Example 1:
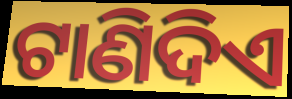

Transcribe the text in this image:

ଟାଣିଦିଏ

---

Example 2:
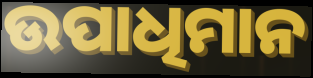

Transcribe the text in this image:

ଉପାଧିମାନ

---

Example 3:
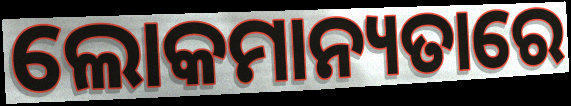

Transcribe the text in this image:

ଲୋକମାନ୍ୟତାରେ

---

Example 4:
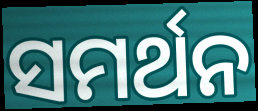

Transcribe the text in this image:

ସମର୍ଥନ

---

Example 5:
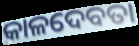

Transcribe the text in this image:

କାଳଦେବତା